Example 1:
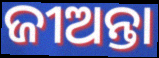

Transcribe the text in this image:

ଜୀଅନ୍ତା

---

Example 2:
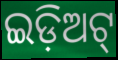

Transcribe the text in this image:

ଇଡ଼ିଅଟ୍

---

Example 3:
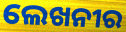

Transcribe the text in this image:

ଲେଖନୀର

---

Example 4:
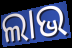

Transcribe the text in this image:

ଲାଭ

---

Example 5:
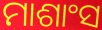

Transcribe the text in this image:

ମାଶାଂସ